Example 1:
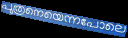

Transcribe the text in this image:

പുത്രനെയെന്നപോലെ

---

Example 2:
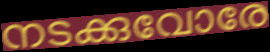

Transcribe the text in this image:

നടക്കുവോരേ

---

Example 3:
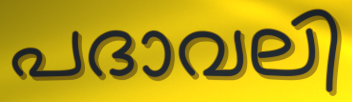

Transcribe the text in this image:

പദാവലി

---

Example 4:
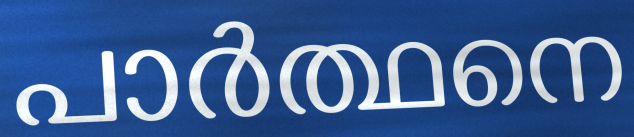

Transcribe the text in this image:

പാർത്ഥനെ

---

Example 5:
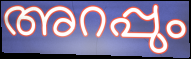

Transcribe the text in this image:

അറപ്പും